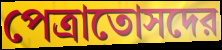
পেত্রাতোসদের